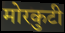
मोरकुटी